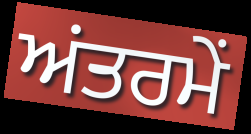
ਅਂਤਰਮੇਂ